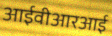
आईवीआरआई